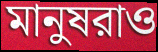
মানুষরাও